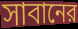
সাবানের